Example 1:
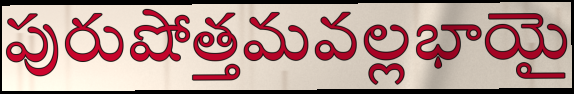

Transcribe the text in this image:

పురుషోత్తమవల్లభాయై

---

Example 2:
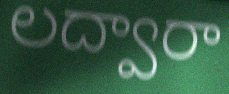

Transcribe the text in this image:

లద్వారా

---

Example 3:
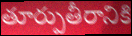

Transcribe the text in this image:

తూర్పుతీరానికి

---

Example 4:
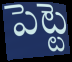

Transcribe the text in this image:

పెట్టె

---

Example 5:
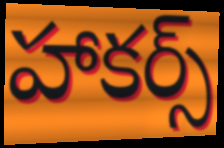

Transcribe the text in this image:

హాకర్స్